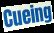
Cueing